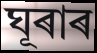
ঘূৰাৰ